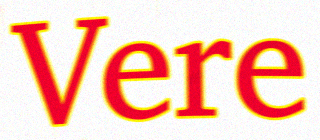
Vere